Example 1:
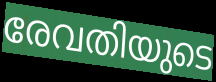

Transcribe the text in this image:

രേവതിയുടെ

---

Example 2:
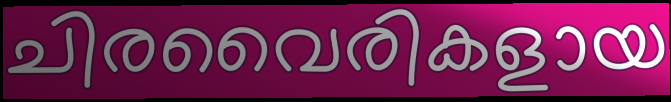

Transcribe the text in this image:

ചിരവൈരികളായ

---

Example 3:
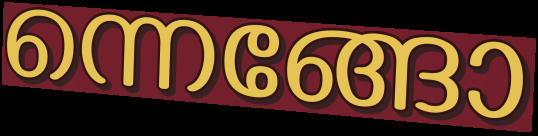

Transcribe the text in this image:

ന്നെങ്ങോ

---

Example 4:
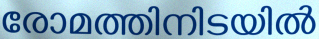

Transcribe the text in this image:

രോമത്തിനിടയിൽ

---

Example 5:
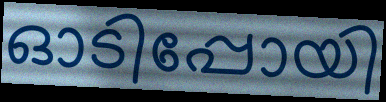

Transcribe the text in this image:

ഓടിപ്പോയി